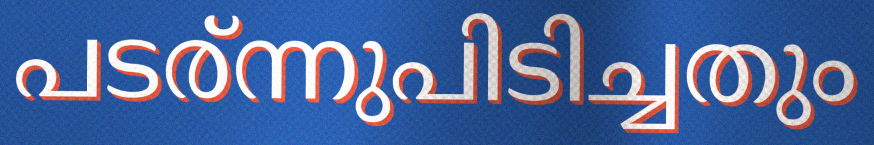
പടര്ന്നുപിടിച്ചതും